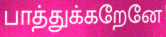
பாத்துக்கறேனே